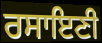
ਰਸਾਇਣੀ